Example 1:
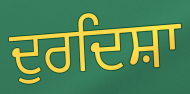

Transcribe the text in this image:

ਦੁਰਦਿਸ਼ਾ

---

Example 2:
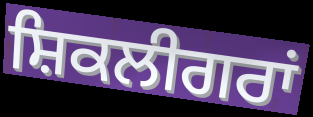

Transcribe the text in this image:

ਸ਼ਿਕਲੀਗਰਾਂ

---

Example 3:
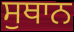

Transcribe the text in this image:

ਸੁਥਾਨ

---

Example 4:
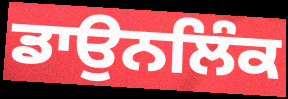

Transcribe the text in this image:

ਡਾਉਨਲਿੰਕ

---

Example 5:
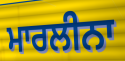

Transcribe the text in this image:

ਮਾਰਲੀਨਾ